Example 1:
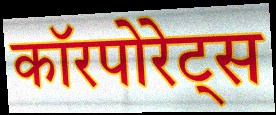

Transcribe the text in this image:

कॉरपोरेट्स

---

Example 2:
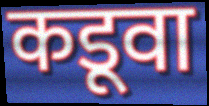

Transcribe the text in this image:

कडूवा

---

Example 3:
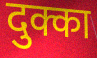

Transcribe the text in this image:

दुक्‍का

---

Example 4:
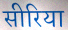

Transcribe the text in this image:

सीरिया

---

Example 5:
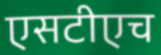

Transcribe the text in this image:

एसटीएच